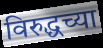
विरुद्धच्या